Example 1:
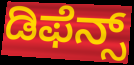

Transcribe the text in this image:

ಡಿಫೆನ್ಸ್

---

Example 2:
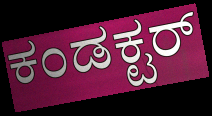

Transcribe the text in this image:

ಕಂಡಕ್ಟರ್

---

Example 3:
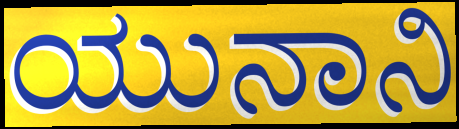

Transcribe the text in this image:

ಯುನಾನಿ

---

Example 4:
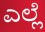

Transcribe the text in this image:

ಎಲ್ಲೆ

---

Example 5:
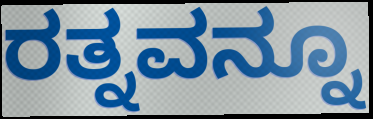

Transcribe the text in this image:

ರತ್ನವನ್ನೂ